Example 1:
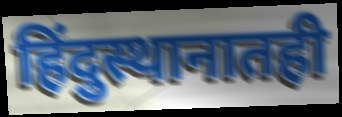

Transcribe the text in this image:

हिंदुस्थानातही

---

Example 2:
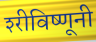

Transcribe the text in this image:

श्रीविष्णूनी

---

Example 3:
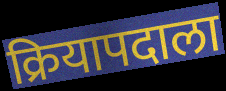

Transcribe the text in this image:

क्रियापदाला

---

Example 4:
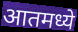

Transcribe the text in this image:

आतमध्ये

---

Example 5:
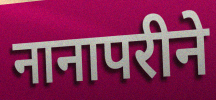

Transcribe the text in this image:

नानापरीने